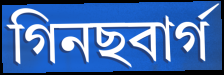
গিনছবাৰ্গ